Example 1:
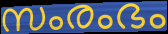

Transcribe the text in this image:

സംരംഭം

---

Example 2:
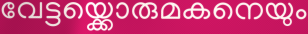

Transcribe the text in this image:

വേട്ടയ്ക്കൊരുമകനെയും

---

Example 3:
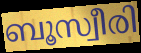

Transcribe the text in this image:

ബൂസ്വീരി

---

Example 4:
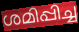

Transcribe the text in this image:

ശമിപ്പിച്ച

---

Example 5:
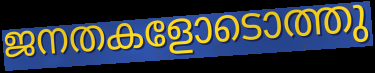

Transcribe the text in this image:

ജനതകളോടൊത്തു